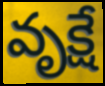
వృక్షే